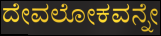
ದೇವಲೋಕವನ್ನೇ